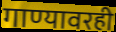
गाण्यावरही